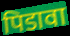
पिडावा